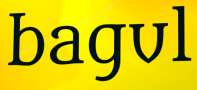
bagul